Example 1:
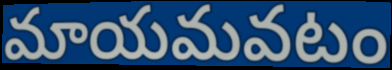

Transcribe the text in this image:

మాయమవటం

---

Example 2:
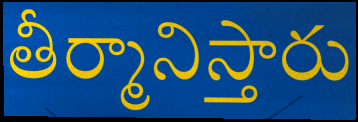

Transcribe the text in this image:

తీర్మానిస్తారు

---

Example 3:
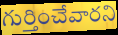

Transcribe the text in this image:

గుర్తించేవారని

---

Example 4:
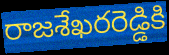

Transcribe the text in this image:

రాజశేఖరరెడ్డికి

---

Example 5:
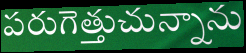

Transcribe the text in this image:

పరుగెత్తుచున్నాను